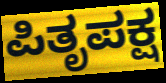
ಪಿತೃಪಕ್ಷ